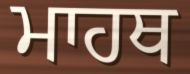
ਮਾਹਥ